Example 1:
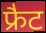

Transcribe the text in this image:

फ्रैट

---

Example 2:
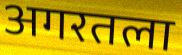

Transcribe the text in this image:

अगरतला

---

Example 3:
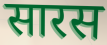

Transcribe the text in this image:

सारस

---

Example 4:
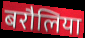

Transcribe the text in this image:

बरौलिया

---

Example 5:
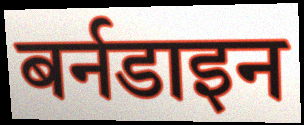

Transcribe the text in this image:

बर्नडाइन